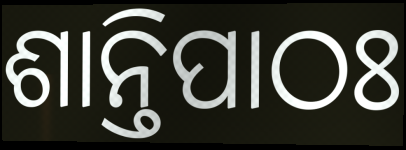
ଶାନ୍ତିପାଠଃ